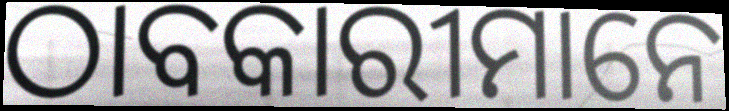
ଠାବକାରୀମାନେ